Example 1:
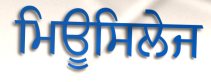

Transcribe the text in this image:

ਮਿਊਸਿਲੇਜ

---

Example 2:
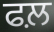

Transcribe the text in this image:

ਫਲ਼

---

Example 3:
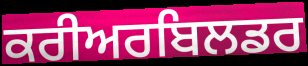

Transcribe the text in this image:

ਕਰੀਅਰਬਿਲਡਰ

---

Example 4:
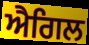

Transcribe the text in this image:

ਐਗਿਲ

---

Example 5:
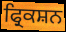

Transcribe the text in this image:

ਫ੍ਰਿਕਸ਼ਨ